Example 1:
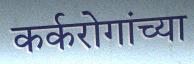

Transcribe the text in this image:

कर्करोगांच्या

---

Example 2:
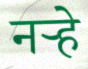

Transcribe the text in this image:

नऱ्हे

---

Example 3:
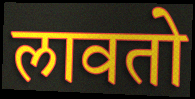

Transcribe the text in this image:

लावतो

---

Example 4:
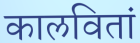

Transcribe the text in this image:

कालवितां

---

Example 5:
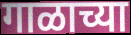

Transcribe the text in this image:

गाळाच्या